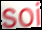
soi